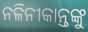
ନଳିନୀକାନ୍ତଙ୍କୁ